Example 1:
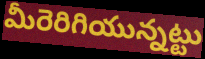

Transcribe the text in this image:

మీరెరిగియున్నట్టు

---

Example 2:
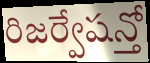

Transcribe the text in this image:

రిజర్వేషన్తో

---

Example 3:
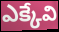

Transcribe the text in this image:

ఎక్కేవి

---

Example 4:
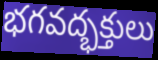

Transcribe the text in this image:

భగవద్భక్తులు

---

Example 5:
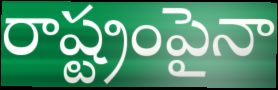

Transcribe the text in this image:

రాష్ట్రంపైనా